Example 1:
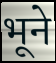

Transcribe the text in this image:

भूने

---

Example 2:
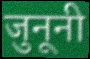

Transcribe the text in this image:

जुनूनी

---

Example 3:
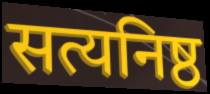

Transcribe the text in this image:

सत्यनिष्ठ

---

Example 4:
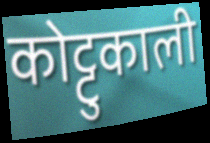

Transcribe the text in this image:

कोट्टुकाली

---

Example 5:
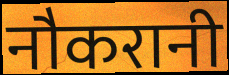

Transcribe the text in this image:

नौकरानी